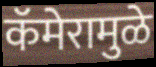
कॅमेरामुळे